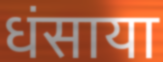
धंसाया